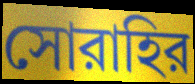
সোরাহির